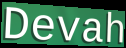
Devah